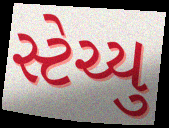
સ્ટેચ્યુ